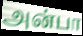
அன்பா